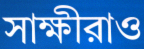
সাক্ষীরাও